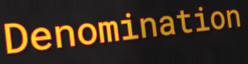
Denomination